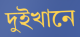
দুইখানে